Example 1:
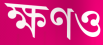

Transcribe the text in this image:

ক্ষণও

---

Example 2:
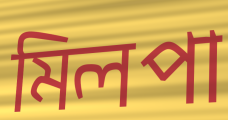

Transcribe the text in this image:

মিলপা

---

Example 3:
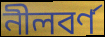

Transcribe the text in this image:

নীলবর্ণ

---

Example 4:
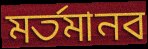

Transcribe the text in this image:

মর্তমানব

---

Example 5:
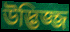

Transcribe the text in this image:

উদ্ভিজ্জ